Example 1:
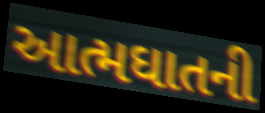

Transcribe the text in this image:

આત્મઘાતની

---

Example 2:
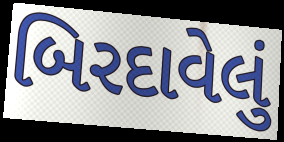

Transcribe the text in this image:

બિરદાવેલું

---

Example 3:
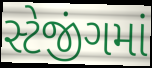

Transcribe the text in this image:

સ્ટેજીંગમાં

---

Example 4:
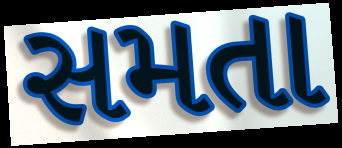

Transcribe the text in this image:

સમતા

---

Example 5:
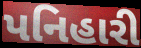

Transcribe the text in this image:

પનિહારી